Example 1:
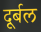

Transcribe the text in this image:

दूर्बल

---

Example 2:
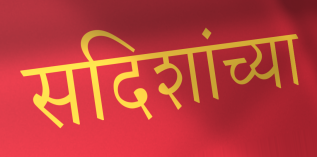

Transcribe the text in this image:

सदिशांच्या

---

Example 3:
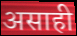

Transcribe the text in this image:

असाही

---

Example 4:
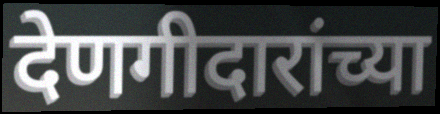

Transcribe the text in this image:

देणगीदारांच्या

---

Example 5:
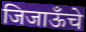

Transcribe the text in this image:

जिजाऊँचे